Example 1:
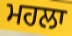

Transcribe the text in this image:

ਮਹਲਾ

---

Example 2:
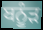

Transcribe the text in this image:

ਬਨੂੰੜ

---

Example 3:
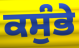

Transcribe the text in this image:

ਕਸੁੰਭੇ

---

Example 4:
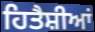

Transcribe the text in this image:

ਹਿਤੈਸ਼ੀਆਂ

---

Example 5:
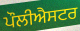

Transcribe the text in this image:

ਪੌਲੀਐਸਟਰ